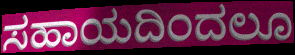
ಸಹಾಯದಿಂದಲೂ